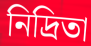
নিদ্রিতা